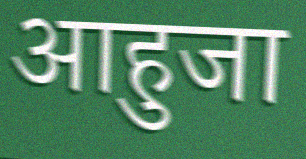
आहुजा